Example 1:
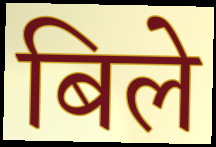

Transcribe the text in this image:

बिले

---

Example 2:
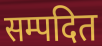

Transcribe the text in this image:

सम्पदित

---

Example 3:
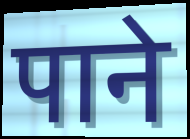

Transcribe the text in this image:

पाने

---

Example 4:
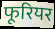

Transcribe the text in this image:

फूरियर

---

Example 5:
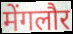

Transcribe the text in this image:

मेंगलौर